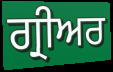
ਗ੍ਰੀਅਰ